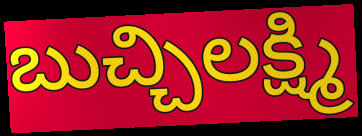
బుచ్చిలక్ష్మి